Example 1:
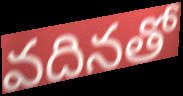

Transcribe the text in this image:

వదినతో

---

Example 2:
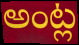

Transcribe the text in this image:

అంట్ల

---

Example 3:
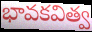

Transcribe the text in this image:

భావకవిత్వ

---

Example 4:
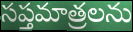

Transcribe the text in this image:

సప్తమాత్రలను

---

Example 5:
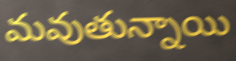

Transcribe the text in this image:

మవుతున్నాయి